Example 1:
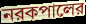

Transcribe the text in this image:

নরকপালের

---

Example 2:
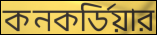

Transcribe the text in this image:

কনকর্ডিয়ার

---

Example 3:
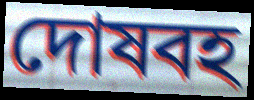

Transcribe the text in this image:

দোষবহ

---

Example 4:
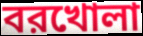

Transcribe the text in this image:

বরখোলা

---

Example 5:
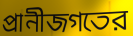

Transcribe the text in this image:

প্রানীজগতের